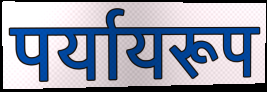
पर्यायरूप